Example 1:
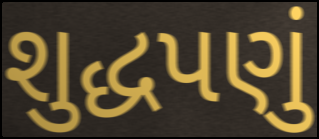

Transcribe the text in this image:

શુદ્ધપણું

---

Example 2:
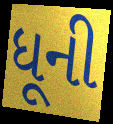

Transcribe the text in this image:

ધૂની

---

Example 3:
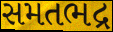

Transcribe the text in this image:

સમતભદ્ર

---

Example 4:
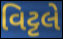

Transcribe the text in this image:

વિટ્ટલે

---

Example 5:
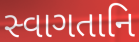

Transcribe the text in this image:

સ્વાગતાનિ